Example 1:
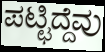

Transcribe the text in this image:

ಪಟ್ಟಿದ್ದೆವು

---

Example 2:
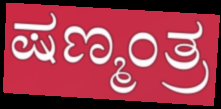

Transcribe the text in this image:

ಷಣ್ಮಂತ್ರ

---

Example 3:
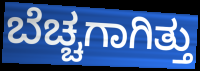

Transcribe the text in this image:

ಬೆಚ್ಚಗಾಗಿತ್ತು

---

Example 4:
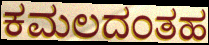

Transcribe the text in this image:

ಕಮಲದಂತಹ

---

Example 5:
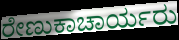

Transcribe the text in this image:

ರೇಣುಕಾಚಾರ್ಯರು